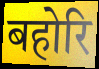
बहोरि